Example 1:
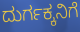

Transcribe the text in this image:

ದುರ್ಗಕ್ಕನಿಗೆ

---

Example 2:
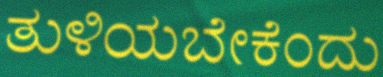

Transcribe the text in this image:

ತುಳಿಯಬೇಕೆಂದು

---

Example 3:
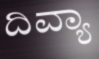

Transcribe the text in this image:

ದಿವ್ಯಾ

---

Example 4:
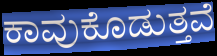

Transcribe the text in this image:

ಕಾವುಕೊಡುತ್ತವೆ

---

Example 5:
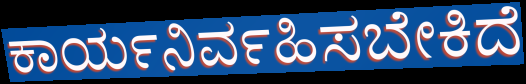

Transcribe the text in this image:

ಕಾರ್ಯನಿರ್ವಹಿಸಬೇಕಿದೆ